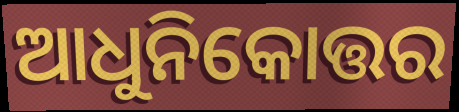
ଆଧୁନିକୋତ୍ତର